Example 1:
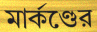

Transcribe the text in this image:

মার্কণ্ডের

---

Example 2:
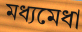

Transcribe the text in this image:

মধ্যমেধা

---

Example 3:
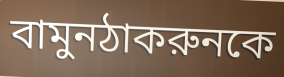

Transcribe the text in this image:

বামুনঠাকরুনকে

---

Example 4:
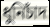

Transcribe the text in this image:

ধুনিচাঁদ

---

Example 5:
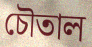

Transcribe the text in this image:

চৌতাল